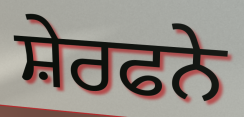
ਸ਼ੇਰਫਨੇ